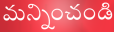
మన్నించండి